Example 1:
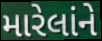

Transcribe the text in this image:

મારેલાંને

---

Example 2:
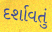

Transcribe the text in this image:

દર્શાવતું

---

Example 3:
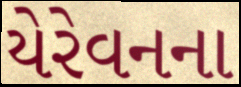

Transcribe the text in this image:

યેરેવનના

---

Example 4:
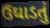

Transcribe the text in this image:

ઉઘાડતું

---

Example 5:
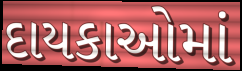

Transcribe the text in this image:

દાયકાઓમાં